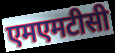
एमएमटीसी